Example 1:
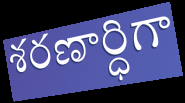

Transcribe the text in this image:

శరణార్ధిగా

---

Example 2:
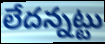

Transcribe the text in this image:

లేదన్నట్టు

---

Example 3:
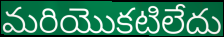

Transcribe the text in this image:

మరియొకటిలేదు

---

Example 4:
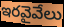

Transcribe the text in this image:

ఇరవైవేలు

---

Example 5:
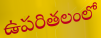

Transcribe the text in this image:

ఉపరితలంలో